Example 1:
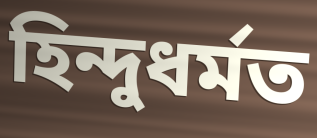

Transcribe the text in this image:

হিন্দুধৰ্মত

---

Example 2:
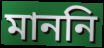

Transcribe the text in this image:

মাননি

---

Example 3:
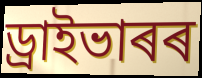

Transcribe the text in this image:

ড্ৰাইভাৰৰ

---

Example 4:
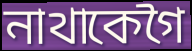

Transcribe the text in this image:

নাথাকেগৈ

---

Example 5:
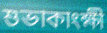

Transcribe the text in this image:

শুভাকাংক্ষী